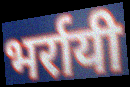
भर्रायी